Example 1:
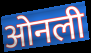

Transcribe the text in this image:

ओनली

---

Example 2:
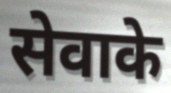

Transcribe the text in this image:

सेवाके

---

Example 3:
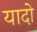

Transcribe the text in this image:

यादो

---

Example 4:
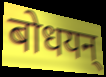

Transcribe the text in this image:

बोधयन्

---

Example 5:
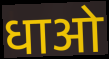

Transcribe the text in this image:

धाओ